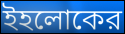
ইহলোকের